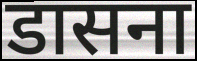
डासना